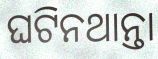
ଘଟିନଥାନ୍ତା